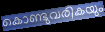
കൊണ്ടുവരികയും